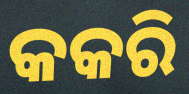
କକରି